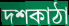
দশকাঠা